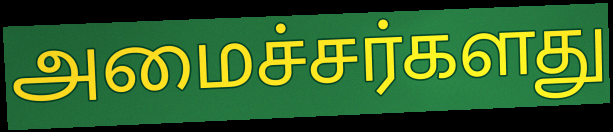
அமைச்சர்களது